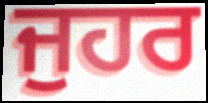
ਜੁਹਰ